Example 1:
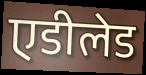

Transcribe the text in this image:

एडीलेड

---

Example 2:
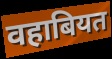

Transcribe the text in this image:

वहाबियत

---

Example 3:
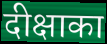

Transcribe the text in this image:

दीक्षाका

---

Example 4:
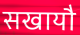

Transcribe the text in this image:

सखायौ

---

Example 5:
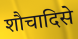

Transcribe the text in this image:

शौचादिसे